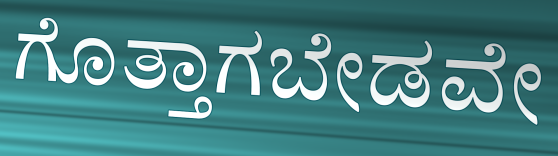
ಗೊತ್ತಾಗಬೇಡವೇ